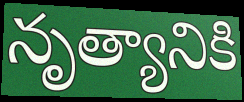
నృత్యానికి